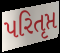
પરિતૃપ્ત